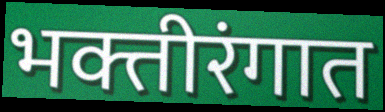
भक्तीरंगात